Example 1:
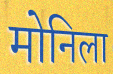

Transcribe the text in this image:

मोनिला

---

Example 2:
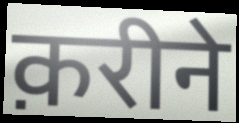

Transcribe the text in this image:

क़रीने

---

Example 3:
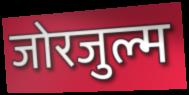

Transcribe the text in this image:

जोरजुल्म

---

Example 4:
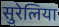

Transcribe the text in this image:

सुरेलिया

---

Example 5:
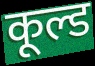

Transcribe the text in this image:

कूल्ड